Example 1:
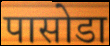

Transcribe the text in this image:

पासोडा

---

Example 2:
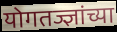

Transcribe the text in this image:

योगतज्ज्ञांच्या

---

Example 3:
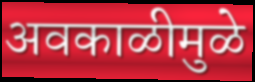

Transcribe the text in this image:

अवकाळीमुळे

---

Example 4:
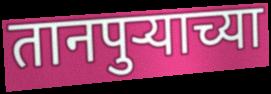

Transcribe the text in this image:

तानपुऱ्याच्या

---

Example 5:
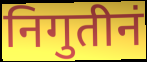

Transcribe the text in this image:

निगुतीनं